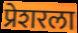
प्रेशरला